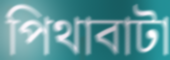
পিথাবাটা